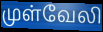
முள்வேலி